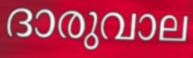
ദാരുവാല